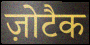
ज़ोटैक